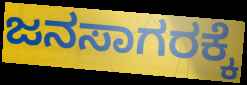
ಜನಸಾಗರಕ್ಕೆ